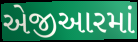
એજીઆરમાં